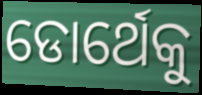
ଡୋର୍ଥେକୁ